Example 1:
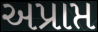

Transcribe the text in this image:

અપ્રાપ્ત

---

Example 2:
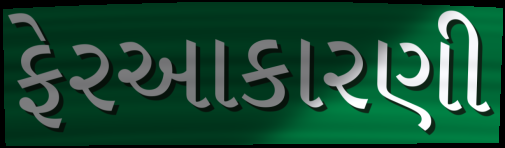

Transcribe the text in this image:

ફેરઆકારણી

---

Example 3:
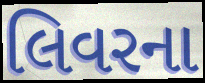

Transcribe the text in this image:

લિવરના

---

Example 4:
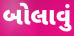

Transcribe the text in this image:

બોલાવું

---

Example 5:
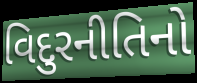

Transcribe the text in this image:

વિદુરનીતિનો